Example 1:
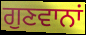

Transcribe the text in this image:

ਗੁਣਵਾਨਾਂ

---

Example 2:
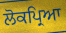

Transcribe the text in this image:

ਲੋਕਪ੍ਰਿਆ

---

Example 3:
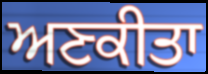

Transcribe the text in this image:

ਅਣਕੀਤਾ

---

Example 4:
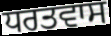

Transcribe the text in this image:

ਧਰਤਵਾਸ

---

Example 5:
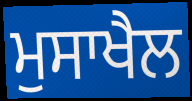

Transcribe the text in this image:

ਮੁਸਾਖੈਲ